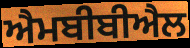
ਐਮਬੀਬੀਐਲ